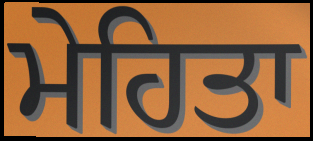
ਮੇਹਿਤਾ